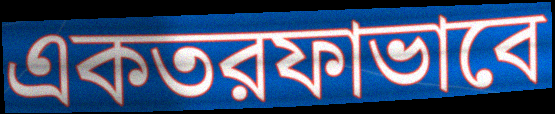
একতরফাভাবে